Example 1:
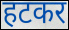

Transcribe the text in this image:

हटकर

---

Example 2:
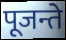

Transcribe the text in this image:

पूजन्ते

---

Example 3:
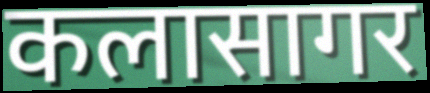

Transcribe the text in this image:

कलासागर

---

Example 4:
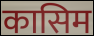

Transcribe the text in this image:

कासिम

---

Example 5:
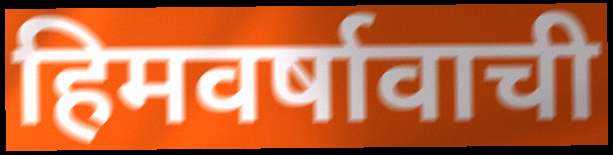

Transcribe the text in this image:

हिमवर्षावाची